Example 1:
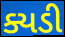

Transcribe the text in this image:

ક્યડી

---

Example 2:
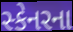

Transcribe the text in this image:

સ્કેનરના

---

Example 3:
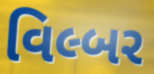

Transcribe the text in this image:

વિલ્બર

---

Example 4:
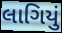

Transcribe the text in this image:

લાગિયું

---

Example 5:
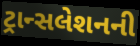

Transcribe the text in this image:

ટ્રાન્સલેશનની